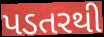
પડતરથી